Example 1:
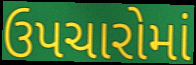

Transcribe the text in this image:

ઉપચારોમાં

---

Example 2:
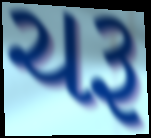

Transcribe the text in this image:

ચરૂ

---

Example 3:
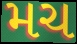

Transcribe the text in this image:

મચ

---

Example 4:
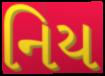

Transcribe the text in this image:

નિય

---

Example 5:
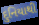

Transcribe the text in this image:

દુનિયાથી